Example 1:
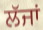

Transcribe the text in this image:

ਲੱਜਾਂ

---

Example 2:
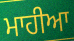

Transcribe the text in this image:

ਮਾਹੀਆ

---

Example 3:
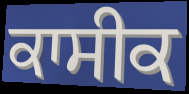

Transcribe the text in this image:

ਕਾਸੀਕ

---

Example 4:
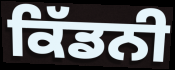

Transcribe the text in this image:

ਕਿੱਡਨੀ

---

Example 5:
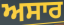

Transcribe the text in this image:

ਅਸਾਰ